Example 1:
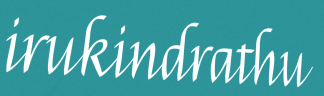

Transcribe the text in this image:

irukindrathu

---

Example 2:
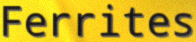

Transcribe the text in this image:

Ferrites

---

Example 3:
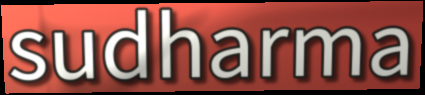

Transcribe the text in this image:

sudharma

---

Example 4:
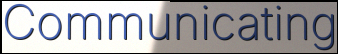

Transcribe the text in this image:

Communicating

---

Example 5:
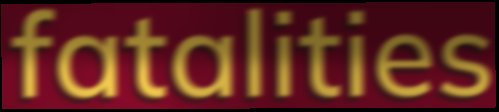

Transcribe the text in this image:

fatalities